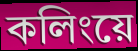
কলিংয়ে